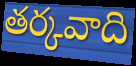
తర్కవాది